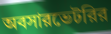
অবসারভেটরির